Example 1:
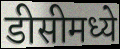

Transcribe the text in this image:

डीसीमध्ये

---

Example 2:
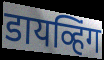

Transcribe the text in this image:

डायव्हिंग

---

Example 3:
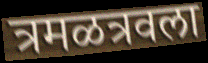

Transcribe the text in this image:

त्रमळत्रवला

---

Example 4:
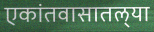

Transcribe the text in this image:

एकांतवासातल्या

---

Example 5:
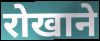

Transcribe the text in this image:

रोखाने